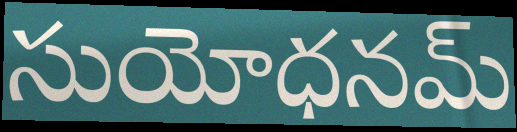
సుయోధనమ్